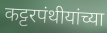
कट्टरपंथीयांच्या